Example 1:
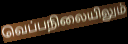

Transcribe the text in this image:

வெப்பநிலையிலும்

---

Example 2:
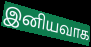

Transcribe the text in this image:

இனியவாக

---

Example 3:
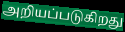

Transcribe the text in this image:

அறியப்படுகிறது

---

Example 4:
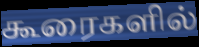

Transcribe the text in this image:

கூரைகளில்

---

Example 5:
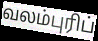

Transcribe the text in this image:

வலம்புரிப்